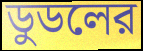
ডুডলের